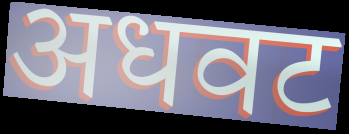
अधवट